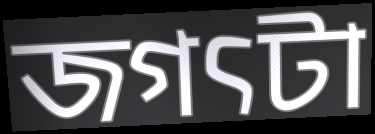
জগৎটা